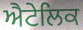
ਐਟੇਲਿਕ